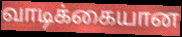
வாடிக்கையான